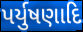
પર્યુષણાદિ